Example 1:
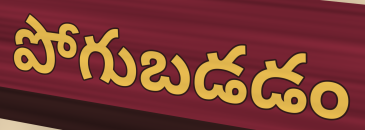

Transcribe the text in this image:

పోగుబడడం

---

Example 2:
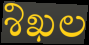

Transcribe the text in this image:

శిఖల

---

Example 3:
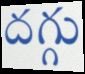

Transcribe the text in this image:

దగ్గు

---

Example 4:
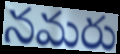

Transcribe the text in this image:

నమరు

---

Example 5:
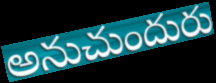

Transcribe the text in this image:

అనుచుందురు